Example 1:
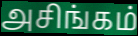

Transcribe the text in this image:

அசிங்கம்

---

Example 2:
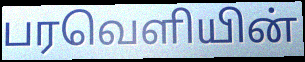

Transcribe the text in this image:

பரவெளியின்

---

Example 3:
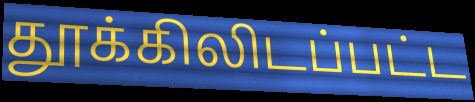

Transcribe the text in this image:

தூக்கிலிடப்பட்ட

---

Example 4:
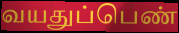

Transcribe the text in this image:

வயதுப்பெண்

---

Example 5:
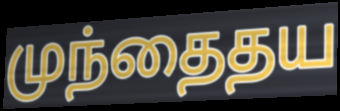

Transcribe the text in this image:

முந்தைதய